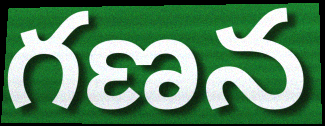
గణన